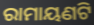
ରାମାୟଣଟି